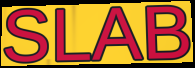
SLAB